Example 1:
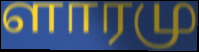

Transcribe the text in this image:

ளாரமு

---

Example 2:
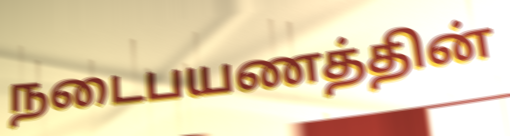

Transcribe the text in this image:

நடைபயணத்தின்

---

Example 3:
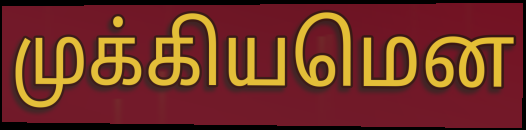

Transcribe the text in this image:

முக்கியமென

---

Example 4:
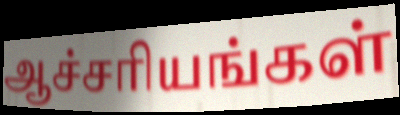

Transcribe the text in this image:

ஆச்சரியங்கள்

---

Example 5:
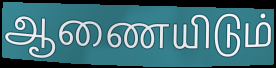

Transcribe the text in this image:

ஆணையிடும்